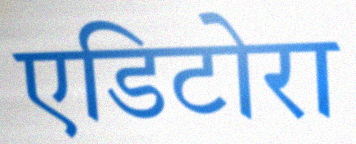
एडिटोरा